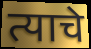
त्याचे